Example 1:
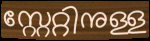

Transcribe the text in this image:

സ്റ്റേറ്റിനുള്ള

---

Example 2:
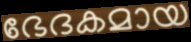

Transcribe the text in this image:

ഭേദകമായ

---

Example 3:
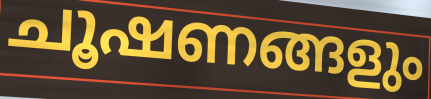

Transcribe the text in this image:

ചൂഷണങ്ങളും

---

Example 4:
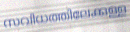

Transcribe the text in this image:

സവിധത്തിലേക്കുള്ള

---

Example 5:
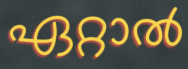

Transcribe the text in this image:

ഏറ്റാൽ